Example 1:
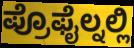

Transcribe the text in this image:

ಪ್ರೊಫೈಲ್ನಲ್ಲಿ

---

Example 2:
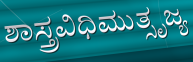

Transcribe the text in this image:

ಶಾಸ್ತ್ರವಿಧಿಮುತ್ಸೃಜ್ಯ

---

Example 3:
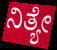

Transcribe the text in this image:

ನಿತ್ಯೇ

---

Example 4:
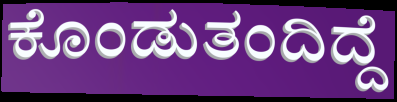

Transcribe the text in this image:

ಕೊಂಡುತಂದಿದ್ದೆ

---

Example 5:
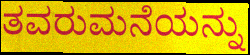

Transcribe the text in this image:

ತವರುಮನೆಯನ್ನು